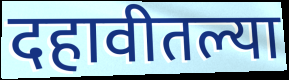
दहावीतल्या